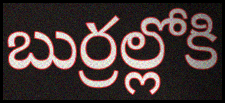
బుర్రల్లోకి